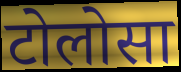
टोलोसा